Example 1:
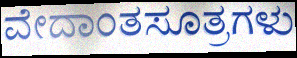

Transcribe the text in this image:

ವೇದಾಂತಸೂತ್ರಗಳು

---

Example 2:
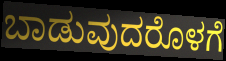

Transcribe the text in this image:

ಬಾಡುವುದರೊಳಗೆ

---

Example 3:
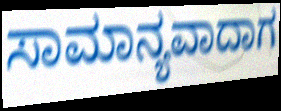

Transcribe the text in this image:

ಸಾಮಾನ್ಯವಾದಾಗ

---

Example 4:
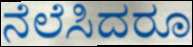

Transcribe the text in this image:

ನೆಲೆಸಿದರೂ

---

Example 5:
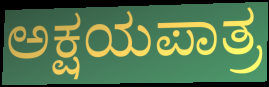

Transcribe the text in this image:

ಅಕ್ಷಯಪಾತ್ರ